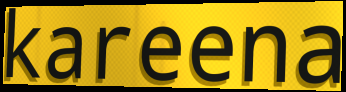
kareena